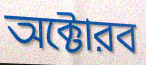
অক্টোরব